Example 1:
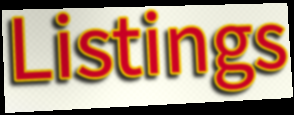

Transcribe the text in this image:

Listings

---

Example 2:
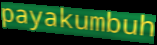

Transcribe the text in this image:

payakumbuh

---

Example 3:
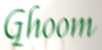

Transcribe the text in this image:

Ghoom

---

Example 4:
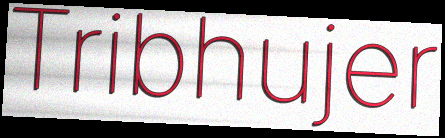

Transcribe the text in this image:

Tribhujer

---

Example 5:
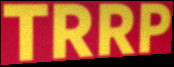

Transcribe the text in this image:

TRRP